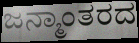
ಜನ್ಮಾಂತರದ